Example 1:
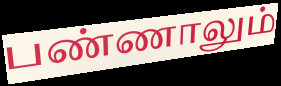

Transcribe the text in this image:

பண்ணாலும்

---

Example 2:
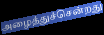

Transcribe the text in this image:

அழைத்துச்சென்றது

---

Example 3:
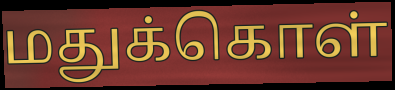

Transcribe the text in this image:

மதுக்கொள்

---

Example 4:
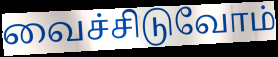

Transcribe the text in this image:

வைச்சிடுவோம்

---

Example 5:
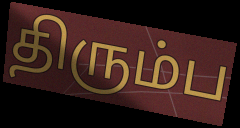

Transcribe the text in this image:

திரும்ப